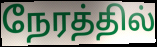
நேரத்தில்